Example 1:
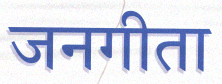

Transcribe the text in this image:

जनगीता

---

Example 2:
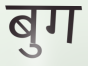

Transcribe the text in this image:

बुग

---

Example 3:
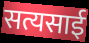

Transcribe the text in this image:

सत्यसाई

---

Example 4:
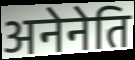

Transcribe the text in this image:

अनेनेति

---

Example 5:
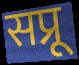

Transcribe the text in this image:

सप्रू